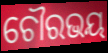
ଚୌରଭୟ